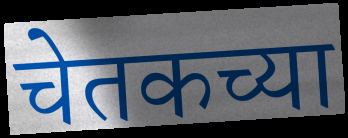
चेतकच्या